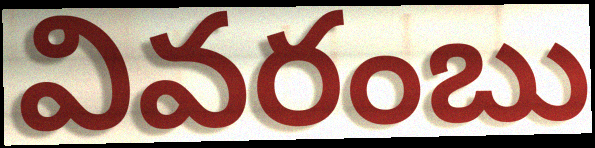
వివరంబు